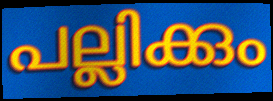
പല്ലിക്കും